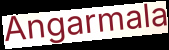
Angarmala